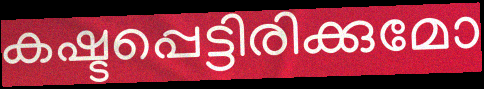
കഷ്ടപ്പെട്ടിരിക്കുമോ